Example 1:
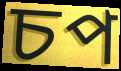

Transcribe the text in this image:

চপ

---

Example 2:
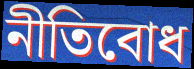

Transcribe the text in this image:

নীতিবোধ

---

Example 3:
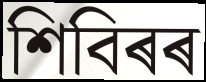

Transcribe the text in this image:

শিবিৰৰ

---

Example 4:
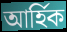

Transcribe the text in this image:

আৰ্হিক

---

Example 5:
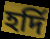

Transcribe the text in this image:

হৰ্দি